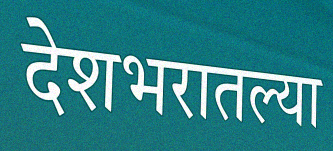
देशभरातल्या